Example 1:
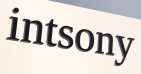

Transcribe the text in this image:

intsony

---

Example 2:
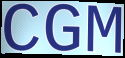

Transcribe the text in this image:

CGM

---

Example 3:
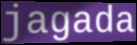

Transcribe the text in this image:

jagada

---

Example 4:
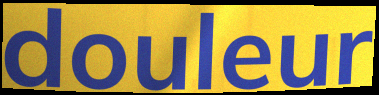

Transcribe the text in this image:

douleur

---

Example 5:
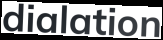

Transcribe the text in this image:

dialation